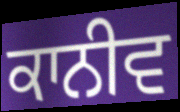
ਕਾਨੀਵ